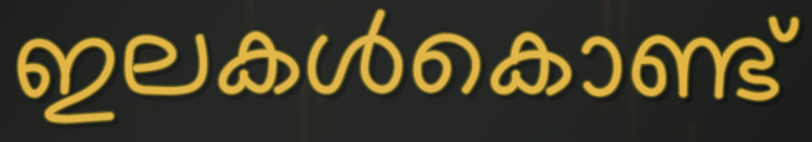
ഇലകൾകൊണ്ട്